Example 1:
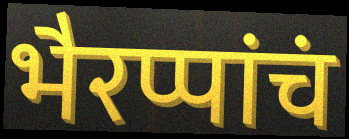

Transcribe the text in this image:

भैरप्पांचं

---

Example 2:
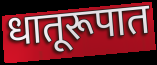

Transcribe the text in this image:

धातूरूपात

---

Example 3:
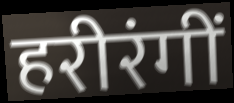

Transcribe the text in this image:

हरीरंगीं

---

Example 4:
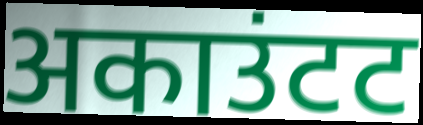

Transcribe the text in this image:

अकाउंटट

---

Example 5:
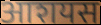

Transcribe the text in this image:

आशयस